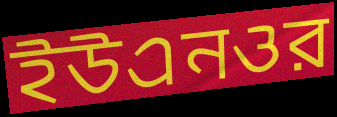
ইউএনওর